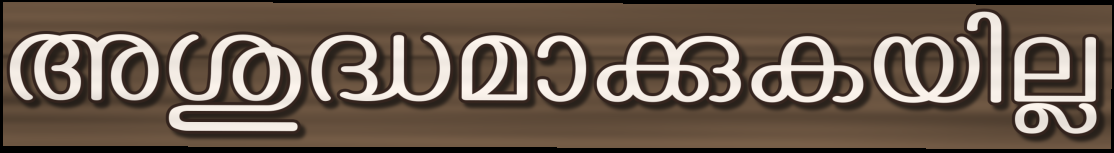
അശുദ്ധമാക്കുകയില്ല